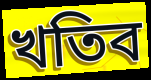
খতিব